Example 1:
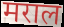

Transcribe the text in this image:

मराल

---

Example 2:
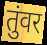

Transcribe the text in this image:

तुंवर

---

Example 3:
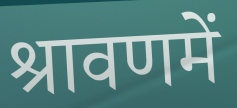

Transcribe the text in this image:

श्रावणमें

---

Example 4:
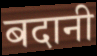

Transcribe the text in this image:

बदानी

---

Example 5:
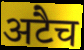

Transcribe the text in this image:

अटैच